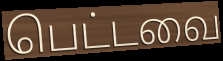
பெட்டவை